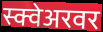
स्क्वेअरवर